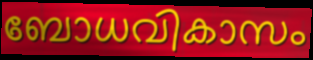
ബോധവികാസം